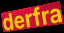
derfra